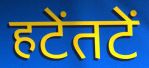
हटेंतटें